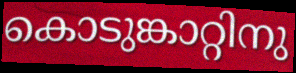
കൊടുങ്കാറ്റിനു